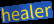
healer